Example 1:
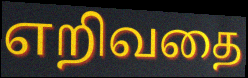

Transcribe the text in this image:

எறிவதை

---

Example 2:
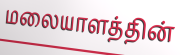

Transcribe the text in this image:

மலையாளத்தின்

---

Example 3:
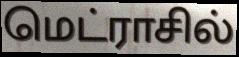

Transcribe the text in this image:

மெட்ராசில்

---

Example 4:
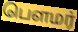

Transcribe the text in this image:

பௌமர்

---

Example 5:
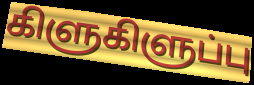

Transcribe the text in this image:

கிளுகிளுப்பு